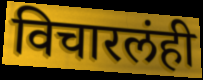
विचारलंही